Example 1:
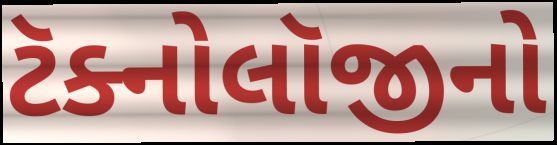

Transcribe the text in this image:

ટૅક્નોલૉજીનો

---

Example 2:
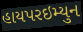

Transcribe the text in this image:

હાયપરઇમ્યુન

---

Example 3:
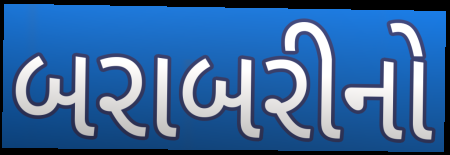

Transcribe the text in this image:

બરાબરીનો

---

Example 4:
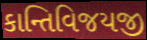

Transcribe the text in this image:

કાન્તિવિજયજી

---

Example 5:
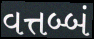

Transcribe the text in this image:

વત્તબ્બં